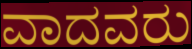
ವಾದವರು